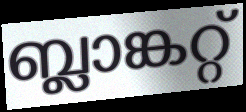
ബ്ലാങ്കറ്റ്